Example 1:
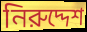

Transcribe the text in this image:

নিৰুদ্দেশ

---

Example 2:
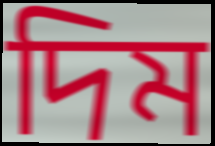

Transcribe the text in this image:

দিম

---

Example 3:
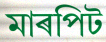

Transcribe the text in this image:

মাৰপিট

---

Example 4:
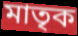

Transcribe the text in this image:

মাতৃক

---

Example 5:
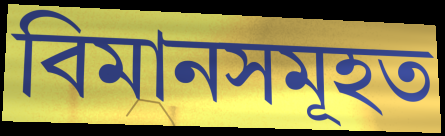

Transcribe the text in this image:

বিমানসমূহত